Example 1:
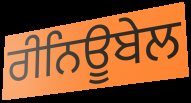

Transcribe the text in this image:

ਰੀਨਿਊਬੇਲ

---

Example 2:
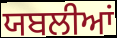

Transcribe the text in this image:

ਯਬਲੀਆਂ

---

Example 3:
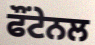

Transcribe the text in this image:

ਫੌਂਟੇਨਲ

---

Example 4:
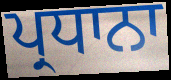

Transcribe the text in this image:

ਪ੍ਰਧਾਨਾ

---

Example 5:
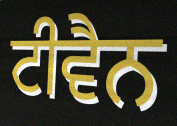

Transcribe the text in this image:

ਟੀਵੈਨ